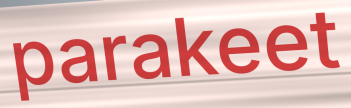
parakeet